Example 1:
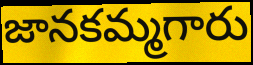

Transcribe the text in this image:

జానకమ్మగారు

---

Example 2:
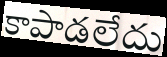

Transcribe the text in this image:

కాపాడలేదు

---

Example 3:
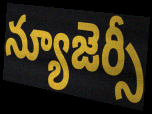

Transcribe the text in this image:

న్యూజెర్సీ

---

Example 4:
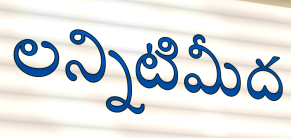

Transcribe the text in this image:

లన్నిటిమీద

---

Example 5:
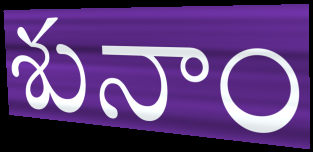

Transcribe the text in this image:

శునాం